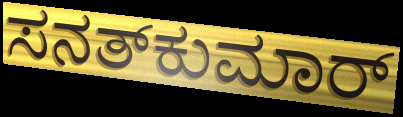
ಸನತ್‌ಕುಮಾರ್